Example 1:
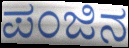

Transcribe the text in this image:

ಪಂಜಿನ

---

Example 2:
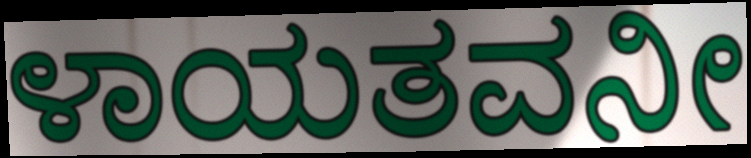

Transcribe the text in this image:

ಳಾಯತವನೀ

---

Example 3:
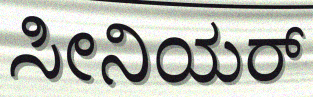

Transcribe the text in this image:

ಸೀನಿಯರ್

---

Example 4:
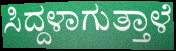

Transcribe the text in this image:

ಸಿದ್ದಳಾಗುತ್ತಾಳೆ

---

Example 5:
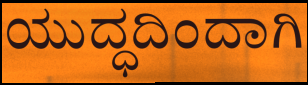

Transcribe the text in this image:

ಯುದ್ಧದಿಂದಾಗಿ